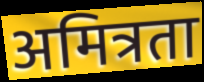
अमित्रता